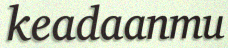
keadaanmu